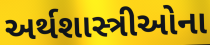
અર્થશાસ્ત્રીઓના